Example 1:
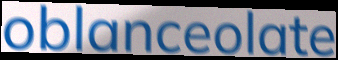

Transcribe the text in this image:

oblanceolate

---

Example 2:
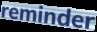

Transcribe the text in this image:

reminder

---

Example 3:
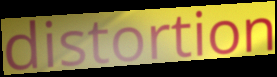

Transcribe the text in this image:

distortion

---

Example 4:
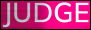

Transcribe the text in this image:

JUDGE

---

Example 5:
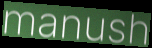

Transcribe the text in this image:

manush